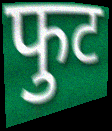
फुट